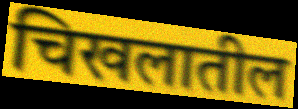
चिखलातील